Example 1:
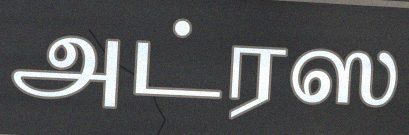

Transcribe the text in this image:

அட்ரஸ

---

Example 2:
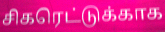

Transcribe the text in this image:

சிகரெட்டுக்காக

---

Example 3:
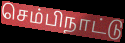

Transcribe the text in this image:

செம்பிநாட்டு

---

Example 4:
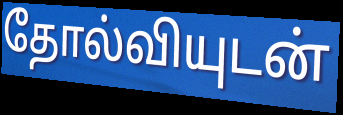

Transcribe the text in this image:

தோல்வியுடன்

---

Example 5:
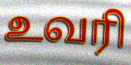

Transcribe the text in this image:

உவரி